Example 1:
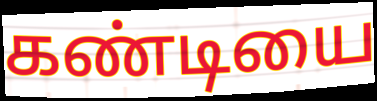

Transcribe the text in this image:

கண்டியை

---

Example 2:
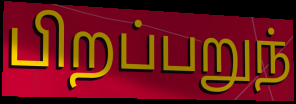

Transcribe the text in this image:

பிறப்பறுந்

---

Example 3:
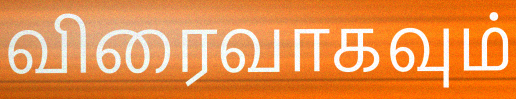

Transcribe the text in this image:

விரைவாகவும்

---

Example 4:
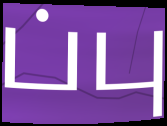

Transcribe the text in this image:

ப்பு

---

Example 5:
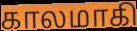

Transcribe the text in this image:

காலமாகி